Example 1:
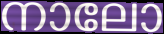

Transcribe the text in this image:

നാലോ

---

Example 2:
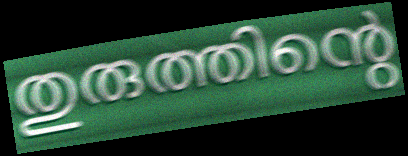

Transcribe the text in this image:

തുരുത്തിന്റെ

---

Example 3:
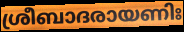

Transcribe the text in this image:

ശ്രീബാദരായണിഃ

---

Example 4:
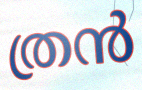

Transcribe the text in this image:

ത്രൻ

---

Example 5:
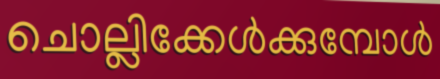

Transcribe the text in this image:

ചൊല്ലിക്കേൾക്കുമ്പോൾ